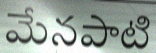
మేనపాటి